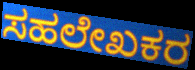
ಸಹಲೇಖಕರ